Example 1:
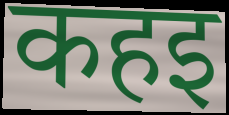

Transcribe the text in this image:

कहइ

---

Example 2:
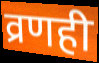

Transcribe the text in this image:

व्रणही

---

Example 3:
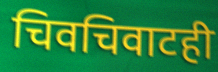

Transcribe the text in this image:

चिवचिवाटही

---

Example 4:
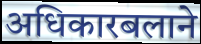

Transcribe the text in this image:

अधिकारबलाने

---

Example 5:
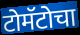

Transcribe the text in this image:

टोमॅटोचा